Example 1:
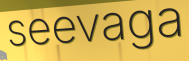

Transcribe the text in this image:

seevaga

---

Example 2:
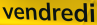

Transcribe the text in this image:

vendredi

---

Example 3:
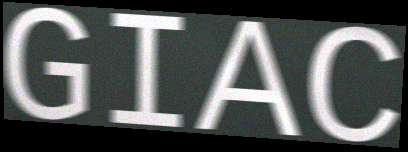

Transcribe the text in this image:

GIAC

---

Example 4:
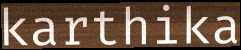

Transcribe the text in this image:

karthika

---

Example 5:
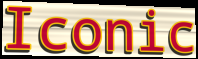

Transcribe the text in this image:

Iconic